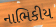
નાભિકીય